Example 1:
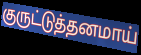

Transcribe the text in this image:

குருட்டுத்தனமாய்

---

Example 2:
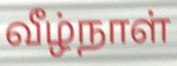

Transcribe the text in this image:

வீழ்நாள்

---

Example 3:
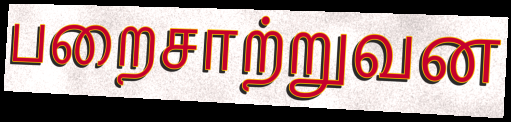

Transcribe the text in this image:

பறைசாற்றுவன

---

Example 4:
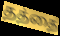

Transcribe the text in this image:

தத்தை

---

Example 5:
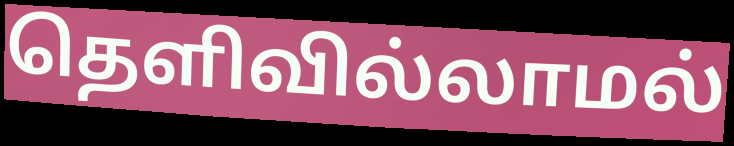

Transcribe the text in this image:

தெளிவில்லாமல்